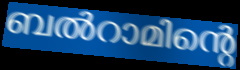
ബൽറാമിന്റെ